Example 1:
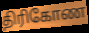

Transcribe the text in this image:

திரிகோண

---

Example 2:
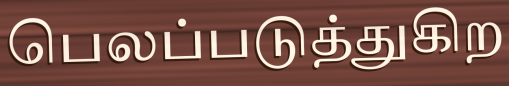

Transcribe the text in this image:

பெலப்படுத்துகிற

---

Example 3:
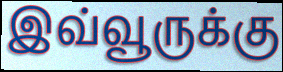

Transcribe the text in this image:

இவ்வூருக்கு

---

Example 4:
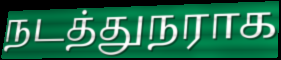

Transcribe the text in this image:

நடத்துநராக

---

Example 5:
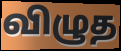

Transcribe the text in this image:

விழுத